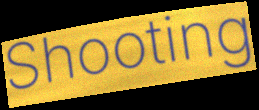
Shooting